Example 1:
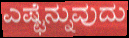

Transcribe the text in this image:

ಎಷ್ಟೆನ್ನುವುದು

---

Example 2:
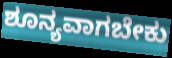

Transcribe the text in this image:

ಶೂನ್ಯವಾಗಬೇಕು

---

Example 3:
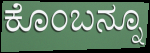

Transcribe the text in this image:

ಕೊಂಬನ್ನೂ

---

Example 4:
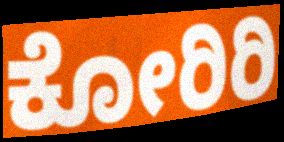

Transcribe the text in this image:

ಕೋರಿರಿ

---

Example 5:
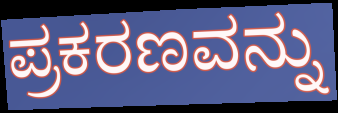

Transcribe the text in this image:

ಪ್ರಕರಣವನ್ನು